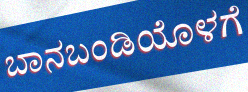
ಬಾನಬಂಡಿಯೊಳಗೆ